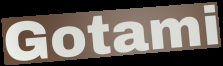
Gotami